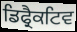
ਡਿਫ੍ਰੈਕਟਿਵ